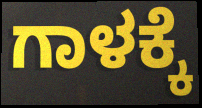
ಗಾಳಕ್ಕೆ